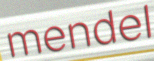
mendel